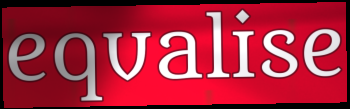
equalise